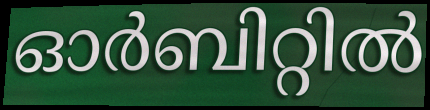
ഓർബിറ്റിൽ